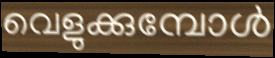
വെളുക്കുമ്പോൾ